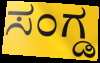
ಸಂಗ್ಡ